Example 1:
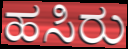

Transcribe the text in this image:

ಹಸಿರು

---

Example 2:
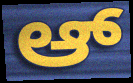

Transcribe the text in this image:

ಆ್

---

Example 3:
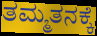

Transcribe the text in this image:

ತಮ್ಮತನಕ್ಕೆ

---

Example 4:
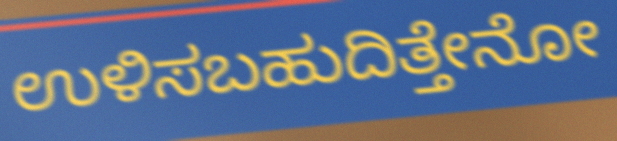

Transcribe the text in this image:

ಉಳಿಸಬಹುದಿತ್ತೇನೋ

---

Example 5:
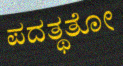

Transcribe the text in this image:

ಪದತ್ಥತೋ